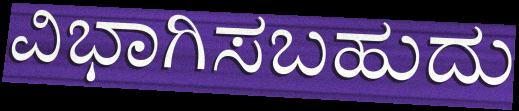
ವಿಭಾಗಿಸಬಹುದು